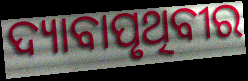
ଦ୍ୟାବାପୃଥିବୀର